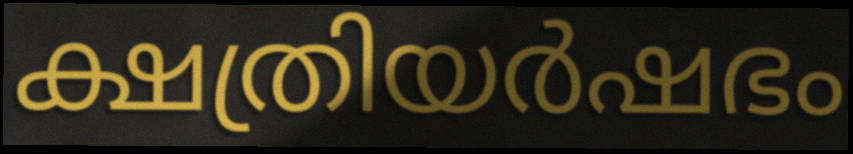
ക്ഷത്രിയർഷഭം